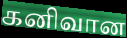
கனிவான